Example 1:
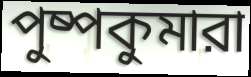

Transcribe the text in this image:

পুষ্পকুমারা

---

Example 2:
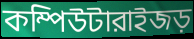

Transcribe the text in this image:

কম্পিউটারাইজড়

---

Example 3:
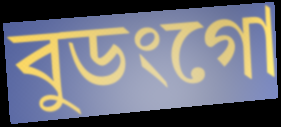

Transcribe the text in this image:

বুডংগো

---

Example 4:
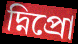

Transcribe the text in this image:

দ্নিপ্রো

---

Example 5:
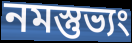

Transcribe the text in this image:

নমস্তুভ্যং